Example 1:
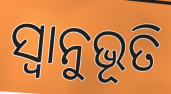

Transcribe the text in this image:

ସ୍ଵାନୁଭୂତି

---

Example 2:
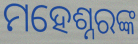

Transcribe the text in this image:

ମହେଶ୍ନରଙ୍କ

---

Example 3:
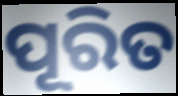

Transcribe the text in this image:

ପୂରିତ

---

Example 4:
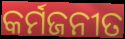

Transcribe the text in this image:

କର୍ମଜନୀତ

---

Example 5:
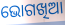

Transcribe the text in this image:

ଭୋଗଖିଆ